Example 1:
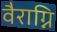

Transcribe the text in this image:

वैराग्नि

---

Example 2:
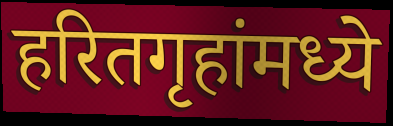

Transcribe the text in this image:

हरितगृहांमध्ये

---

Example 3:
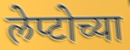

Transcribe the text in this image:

लेप्टोच्या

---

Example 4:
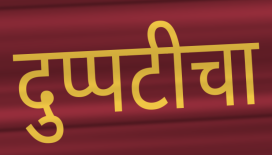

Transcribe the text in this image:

दुप्पटीचा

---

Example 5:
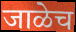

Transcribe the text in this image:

जाळेच